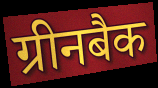
ग्रीनबैक